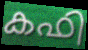
കഫി